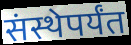
संस्थेपर्यंत